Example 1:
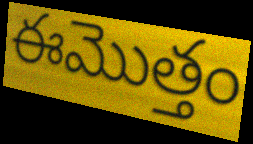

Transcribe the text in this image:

ఈమొత్తం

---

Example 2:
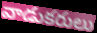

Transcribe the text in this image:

వాడుకరులు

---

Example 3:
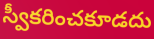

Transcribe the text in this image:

స్వీకరించకూడదు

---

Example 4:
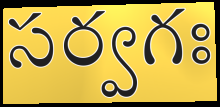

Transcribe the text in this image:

సర్వగః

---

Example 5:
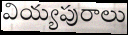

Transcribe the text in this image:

వియ్యపురాలు